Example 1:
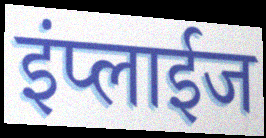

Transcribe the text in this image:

इंप्लाईज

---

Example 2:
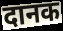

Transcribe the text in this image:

दानक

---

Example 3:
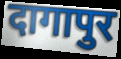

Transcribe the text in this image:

दागापुर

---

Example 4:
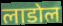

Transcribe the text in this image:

लाडोल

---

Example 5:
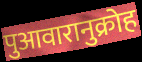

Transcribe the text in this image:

पुआवारानुक्रोह